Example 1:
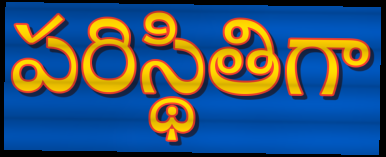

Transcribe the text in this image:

పరిస్థితిగా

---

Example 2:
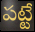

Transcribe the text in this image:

పట్టే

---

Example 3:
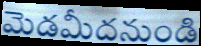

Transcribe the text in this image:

మెడమీదనుండి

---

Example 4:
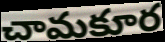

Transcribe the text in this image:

చామకూర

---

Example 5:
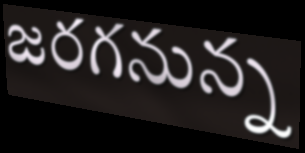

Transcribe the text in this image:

జరగనున్న